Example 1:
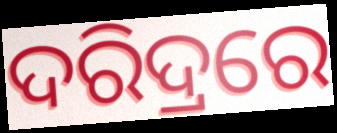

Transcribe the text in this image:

ଦରିଦ୍ରରେ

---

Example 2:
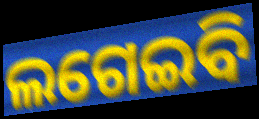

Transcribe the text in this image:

ଲଗେଇବି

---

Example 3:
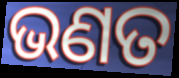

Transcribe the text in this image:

ଭଣତ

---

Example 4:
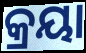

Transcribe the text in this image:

କ୍ରୟା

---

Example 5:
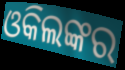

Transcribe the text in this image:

ଓକିଲଙ୍କର